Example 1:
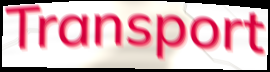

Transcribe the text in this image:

Transport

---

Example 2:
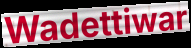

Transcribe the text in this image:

Wadettiwar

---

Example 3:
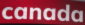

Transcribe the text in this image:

canada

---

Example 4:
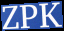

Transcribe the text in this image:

ZPK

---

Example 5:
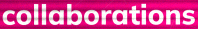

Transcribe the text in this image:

collaborations